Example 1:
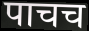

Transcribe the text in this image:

पाचच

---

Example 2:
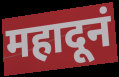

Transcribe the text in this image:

महादूनं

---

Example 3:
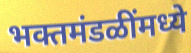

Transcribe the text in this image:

भक्तमंडळींमध्ये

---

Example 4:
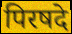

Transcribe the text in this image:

पिरषदे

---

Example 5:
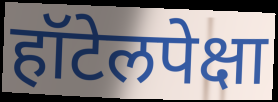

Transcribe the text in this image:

हॉटेलपेक्षा